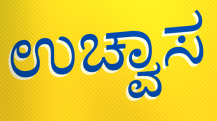
ಉಚ್ವಾಸ